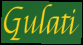
Gulati